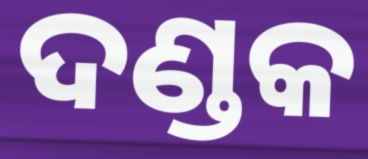
ଦଣ୍ଡକ